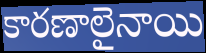
కారణాలైనాయి